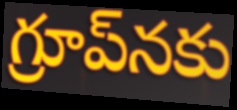
గ్రూప్‌నకు